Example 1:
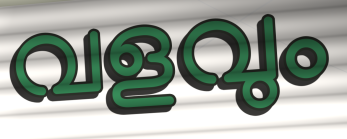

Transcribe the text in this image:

വളവും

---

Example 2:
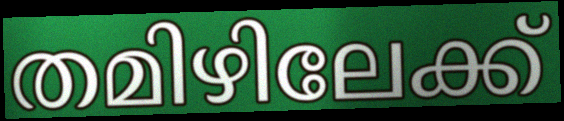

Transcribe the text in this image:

തമിഴിലേക്ക്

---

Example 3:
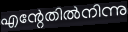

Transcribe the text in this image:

എന്റേതിൽനിന്നു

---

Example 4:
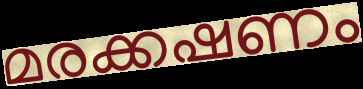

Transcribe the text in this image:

മരക്കഷണം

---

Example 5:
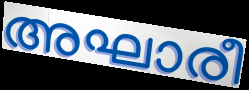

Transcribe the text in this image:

അഘാരീ